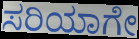
ಸರಿಯಾಗೇ